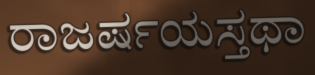
ರಾಜರ್ಷಯಸ್ತಥಾ